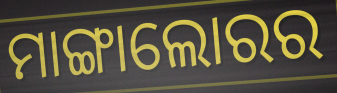
ମାଙ୍ଗାଲୋରର